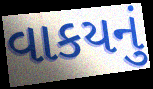
વાકયનું